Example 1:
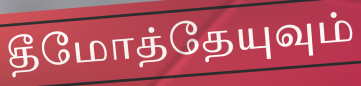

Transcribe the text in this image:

தீமோத்தேயுவும்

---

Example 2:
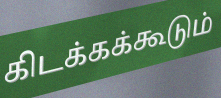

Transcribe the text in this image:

கிடக்கக்கூடும்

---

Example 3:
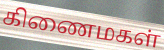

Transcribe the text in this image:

கிணைமகள்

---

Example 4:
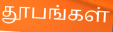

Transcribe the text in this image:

தூபங்கள்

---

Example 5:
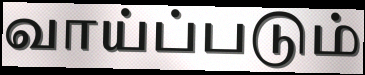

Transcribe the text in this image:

வாய்ப்படும்